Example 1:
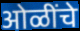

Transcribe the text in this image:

ओळींचे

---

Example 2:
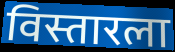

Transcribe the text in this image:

विस्तारला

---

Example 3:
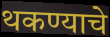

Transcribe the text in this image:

थकण्याचे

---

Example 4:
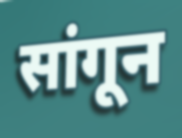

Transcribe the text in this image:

सांगून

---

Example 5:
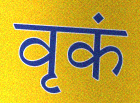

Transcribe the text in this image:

वृकं